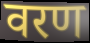
वरण